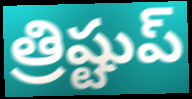
త్రిష్టుప్